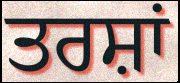
ਤਰਸ਼ਾਂ